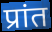
प्रांत